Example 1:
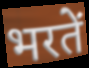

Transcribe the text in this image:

भरतें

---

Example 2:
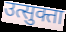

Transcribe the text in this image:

उत्सुक्ता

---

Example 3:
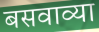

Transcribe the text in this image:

बसवाव्या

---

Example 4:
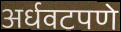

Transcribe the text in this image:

अर्धवटपणे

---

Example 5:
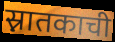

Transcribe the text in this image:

स्नातकाची